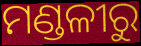
ମଣ୍ଡଳୀରୁ